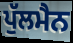
ਪੁੱਲਮੈਨ